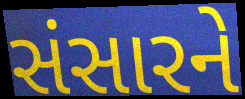
સંસારને